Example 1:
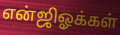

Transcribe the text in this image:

என்ஜிஓக்கள்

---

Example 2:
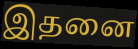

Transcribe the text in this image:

இதனை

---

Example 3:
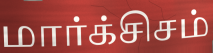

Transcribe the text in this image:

மார்க்சிசம்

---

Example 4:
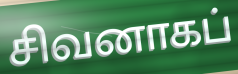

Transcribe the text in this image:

சிவனாகப்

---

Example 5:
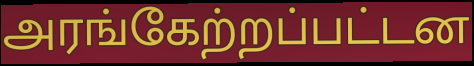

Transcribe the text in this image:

அரங்கேற்றப்பட்டன